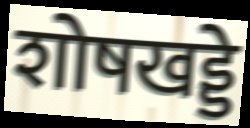
शोषखड्डे